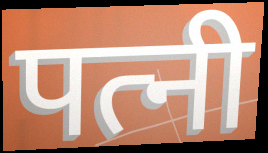
पत्‍नी